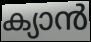
ക്യാൻ